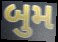
બુમ